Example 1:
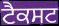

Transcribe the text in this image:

ਟੈਕਸਟ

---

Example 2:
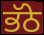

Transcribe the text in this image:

ਭੱਠੇ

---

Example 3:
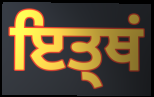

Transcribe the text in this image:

ਇਤ੍ਥਂ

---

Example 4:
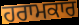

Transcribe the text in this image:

ਹਰਾਮਕਾਰ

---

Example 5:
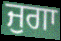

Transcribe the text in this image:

ਜੁਗਾ